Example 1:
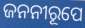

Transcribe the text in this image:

ଜନନୀରୂପେ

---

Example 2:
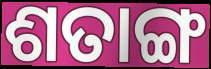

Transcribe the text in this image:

ଶତାଙ୍ଗ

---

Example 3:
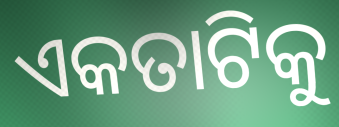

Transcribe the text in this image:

ଏକତାଟିକୁ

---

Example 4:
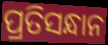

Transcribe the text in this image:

ପ୍ରତିସନ୍ଧାନ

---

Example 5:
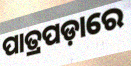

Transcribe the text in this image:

ପାତ୍ରପଡ଼ାରେ